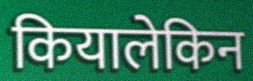
कियालेकिन